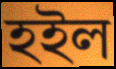
হইল